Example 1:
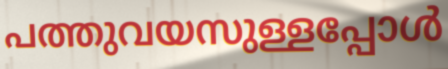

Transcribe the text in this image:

പത്തുവയസുള്ളപ്പോൾ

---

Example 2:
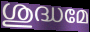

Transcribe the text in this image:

ശുദ്ധമേ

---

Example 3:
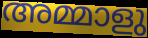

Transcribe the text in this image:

അമ്മാളു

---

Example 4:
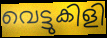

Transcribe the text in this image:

വെട്ടുകിളി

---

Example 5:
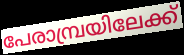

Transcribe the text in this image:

പേരാമ്പ്രയിലേക്ക്